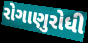
રોગાણુરોધી